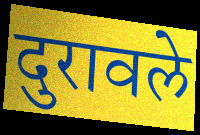
दुरावले